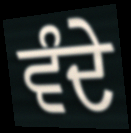
ਵੰਦੇ